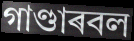
গাণ্ডাৰবল